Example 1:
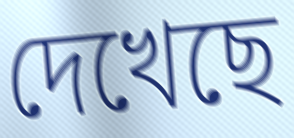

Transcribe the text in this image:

দেখেছে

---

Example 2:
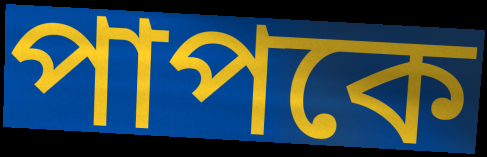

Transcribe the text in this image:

পাপকে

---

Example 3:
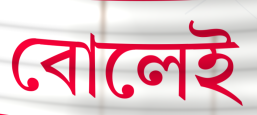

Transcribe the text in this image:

বোলেই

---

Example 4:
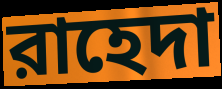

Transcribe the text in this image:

রাহেদা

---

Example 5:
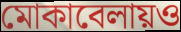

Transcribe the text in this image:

মোকাবেলায়ও